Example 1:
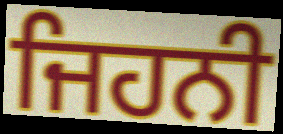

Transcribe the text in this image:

ਜਿਹਨੀ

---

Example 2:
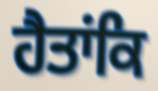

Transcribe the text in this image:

ਹੈਤਾਂਕਿ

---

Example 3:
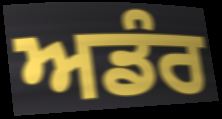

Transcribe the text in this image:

ਅਡੰਰ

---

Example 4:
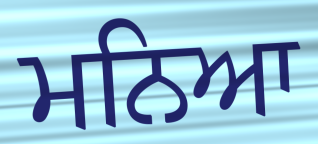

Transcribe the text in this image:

ਮਨਿਆ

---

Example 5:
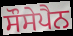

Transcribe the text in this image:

ਸੌਸੇਪੈਨ